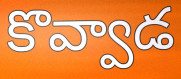
కొవ్వాడ